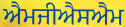
ਐਮਜੀਐਸਐਮ